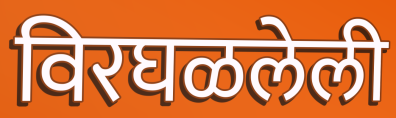
विरघळलेली